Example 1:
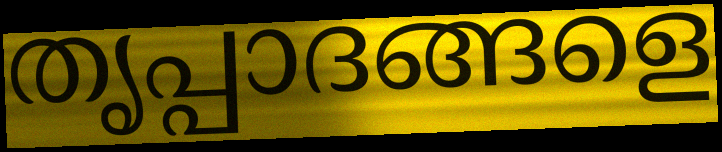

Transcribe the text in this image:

തൃപ്പാദങ്ങളെ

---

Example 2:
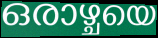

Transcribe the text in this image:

ഒരാഴ്ചയെ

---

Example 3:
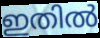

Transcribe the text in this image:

ഇതിൽ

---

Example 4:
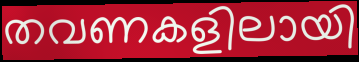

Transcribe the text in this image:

തവണകളിലായി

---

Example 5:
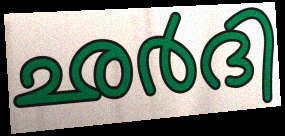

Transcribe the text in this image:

ഛർദി